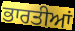
ਭਾਰਤੀਆਂ